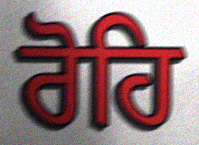
ਰੋਹਿ